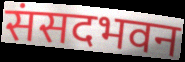
संसदभवन